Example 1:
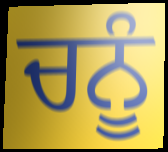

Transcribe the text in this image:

ਚਨੂੰ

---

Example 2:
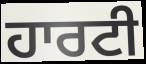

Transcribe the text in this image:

ਹਾਰਟੀ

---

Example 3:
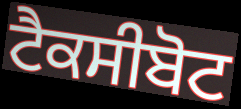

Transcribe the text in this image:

ਟੈਕਸੀਬੋਟ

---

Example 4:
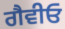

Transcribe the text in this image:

ਗੈਵੀਓ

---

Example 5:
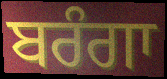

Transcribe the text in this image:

ਬਰੰਗਾ